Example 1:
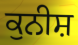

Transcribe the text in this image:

ਕੁਨੀਸ਼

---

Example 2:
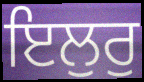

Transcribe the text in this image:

ਇਲੁਰੁ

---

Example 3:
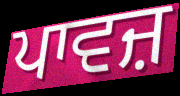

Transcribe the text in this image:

ਪਾਵਜ਼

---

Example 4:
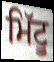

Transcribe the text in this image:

ਮਿੱਟੂ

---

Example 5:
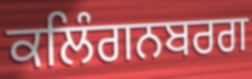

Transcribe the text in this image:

ਕਲਿੰਗਨਬਰਗ